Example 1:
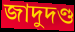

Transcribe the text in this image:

জাদুদণ্ড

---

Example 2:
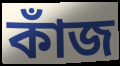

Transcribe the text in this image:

কাঁজ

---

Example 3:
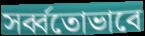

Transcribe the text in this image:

সর্ব্বতোভাবে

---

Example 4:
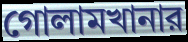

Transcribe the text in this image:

গোলামখানার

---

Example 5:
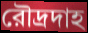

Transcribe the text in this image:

রৌদ্রদাহ